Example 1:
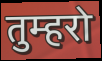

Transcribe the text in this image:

तुम्हरो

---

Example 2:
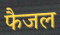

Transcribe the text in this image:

फैजल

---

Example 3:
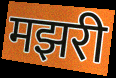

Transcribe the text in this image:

मझरी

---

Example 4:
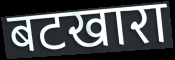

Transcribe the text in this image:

बटखारा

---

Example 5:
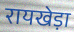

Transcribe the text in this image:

रायखेड़ा